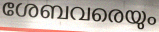
ശേബവരെയും